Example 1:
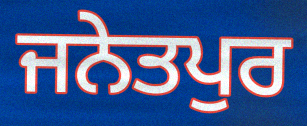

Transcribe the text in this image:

ਜਨੇਤਪੁਰ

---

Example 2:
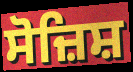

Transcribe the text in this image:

ਸੋਜ਼ਿਸ਼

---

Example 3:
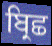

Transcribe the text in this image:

ਬ੍ਰਿਛ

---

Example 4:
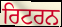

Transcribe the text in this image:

ਰਿਟਰਨ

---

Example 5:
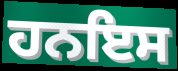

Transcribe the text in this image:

ਹਨਇਸ